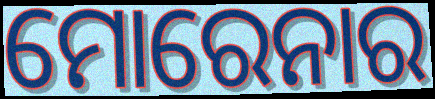
ମୋରେନାର